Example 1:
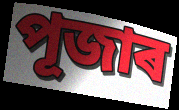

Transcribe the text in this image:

পূজাৰ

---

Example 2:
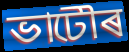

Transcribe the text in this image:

ভাটৌৰ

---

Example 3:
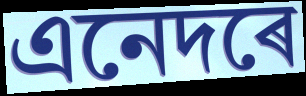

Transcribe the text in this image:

এনেদৰে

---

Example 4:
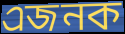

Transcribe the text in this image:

এজনক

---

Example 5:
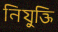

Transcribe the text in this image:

নিযুক্তি